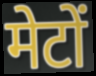
मेटों